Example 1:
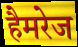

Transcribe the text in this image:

हैमरेज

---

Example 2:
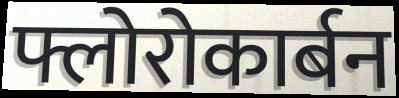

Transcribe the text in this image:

फ्लोरोकार्बन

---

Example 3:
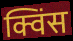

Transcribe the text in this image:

क्विंस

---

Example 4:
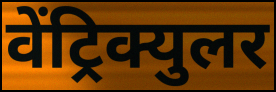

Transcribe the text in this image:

वेंट्रिक्युलर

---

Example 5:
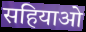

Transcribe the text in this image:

सहियाओ